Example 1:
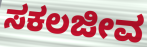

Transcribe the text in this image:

ಸಕಲಜೀವ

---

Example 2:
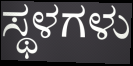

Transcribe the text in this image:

ಸ್ಥಳಗಳು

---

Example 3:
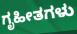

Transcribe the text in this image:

ಗೃಹೀತಗಳು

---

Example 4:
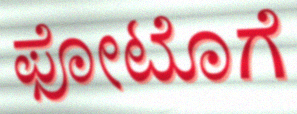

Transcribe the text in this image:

ಫೋಟೊಗೆ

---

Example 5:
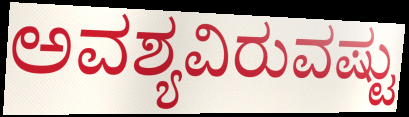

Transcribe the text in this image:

ಅವಶ್ಯವಿರುವಷ್ಟು